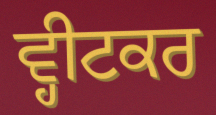
ਵ੍ਹੀਟਕਰ